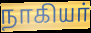
நாகியர்